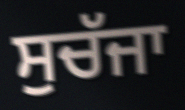
ਸੁਚੱਜਾ